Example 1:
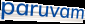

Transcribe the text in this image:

paruvam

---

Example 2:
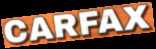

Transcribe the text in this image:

CARFAX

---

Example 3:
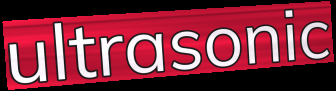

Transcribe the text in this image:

ultrasonic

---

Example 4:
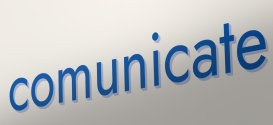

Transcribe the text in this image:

comunicate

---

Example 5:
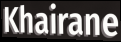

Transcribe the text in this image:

Khairane